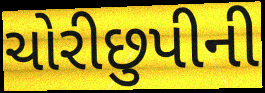
ચોરીછુપીની